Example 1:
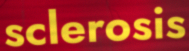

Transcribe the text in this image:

sclerosis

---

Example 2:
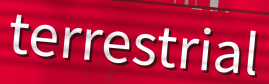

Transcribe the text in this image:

terrestrial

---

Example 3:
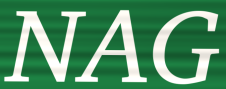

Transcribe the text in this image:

NAG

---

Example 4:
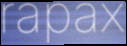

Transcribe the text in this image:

rapax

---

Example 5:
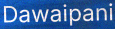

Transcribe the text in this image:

Dawaipani